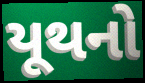
યૂથનો